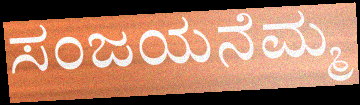
ಸಂಜಯನೆಮ್ಮ